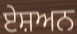
ਏਸ਼ਅਨ